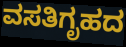
ವಸತಿಗೃಹದ